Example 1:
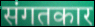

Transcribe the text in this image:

संगतकार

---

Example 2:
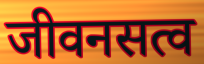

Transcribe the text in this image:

जीवनसत्व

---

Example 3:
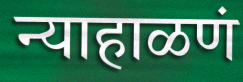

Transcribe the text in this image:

न्याहाळणं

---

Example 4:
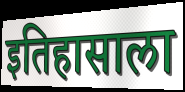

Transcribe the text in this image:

इतिहासाला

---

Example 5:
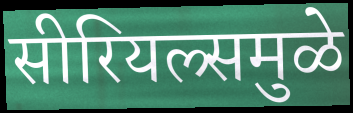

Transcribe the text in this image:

सीरियल्समुळे